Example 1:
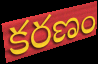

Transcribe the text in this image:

కరణం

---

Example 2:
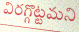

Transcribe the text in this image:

విరగ్గొట్టమని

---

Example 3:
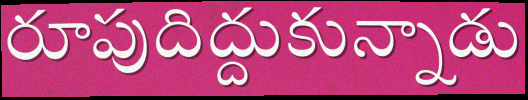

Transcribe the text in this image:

రూపుదిద్దుకున్నాడు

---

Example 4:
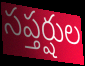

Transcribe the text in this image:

సప్తర్షుల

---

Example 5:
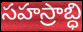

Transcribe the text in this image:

సహస్రాబ్ధి